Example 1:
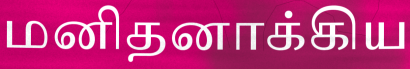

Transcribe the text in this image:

மனிதனாக்கிய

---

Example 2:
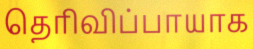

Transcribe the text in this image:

தெரிவிப்பாயாக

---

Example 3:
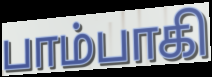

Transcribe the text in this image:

பாம்பாகி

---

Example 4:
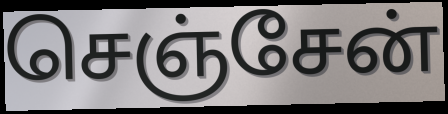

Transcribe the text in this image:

செஞ்சேன்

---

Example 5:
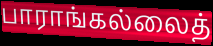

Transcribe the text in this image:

பாராங்கல்லைத்